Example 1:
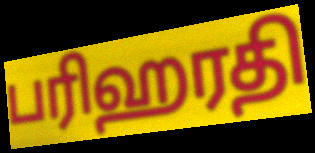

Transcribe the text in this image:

பரிஹரதி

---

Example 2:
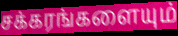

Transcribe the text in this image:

சக்கரங்களையும்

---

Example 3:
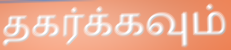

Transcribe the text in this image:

தகர்க்கவும்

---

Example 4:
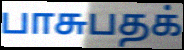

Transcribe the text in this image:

பாசுபதக்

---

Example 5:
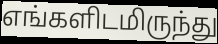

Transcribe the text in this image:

எங்களிடமிருந்து